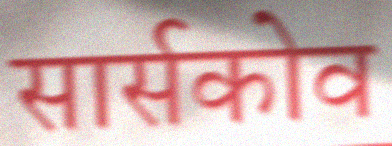
सार्सकोव